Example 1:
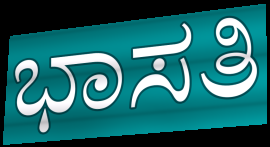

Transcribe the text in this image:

ಭಾಸತಿ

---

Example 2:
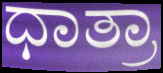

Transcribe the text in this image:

ಧಾತ್ರಾ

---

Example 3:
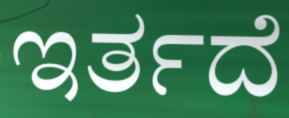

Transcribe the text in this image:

ಇರ್ತದೆ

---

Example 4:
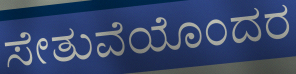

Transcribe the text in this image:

ಸೇತುವೆಯೊಂದರ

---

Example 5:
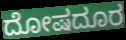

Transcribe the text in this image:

ದೋಷದೂರ